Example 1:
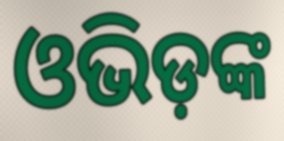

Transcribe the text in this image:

ଓଭିଡ଼ଙ୍କ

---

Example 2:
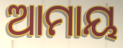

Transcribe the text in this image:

ଆମାୟ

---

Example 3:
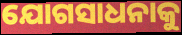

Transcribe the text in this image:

ଯୋଗସାଧନାକୁ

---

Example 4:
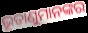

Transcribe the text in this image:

ଭୂତାଣୁମାନଙ୍କର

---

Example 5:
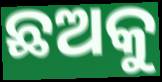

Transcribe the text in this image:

ଛଅକୁ